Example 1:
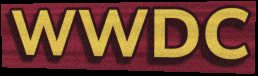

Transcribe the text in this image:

WWDC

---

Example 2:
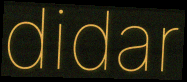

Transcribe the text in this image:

didar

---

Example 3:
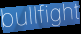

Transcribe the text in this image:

bullfight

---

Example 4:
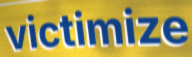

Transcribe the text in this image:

victimize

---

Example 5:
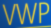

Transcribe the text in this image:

VWP